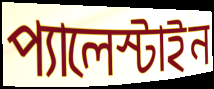
প্যালেস্টাইন